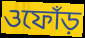
ওফোঁড়